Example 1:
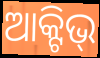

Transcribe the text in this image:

ଆକ୍ଟିଭ୍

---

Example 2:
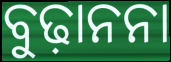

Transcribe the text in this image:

ବୁଢ଼ାନନା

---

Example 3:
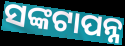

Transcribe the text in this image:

ସଙ୍କଟାପନ୍ନ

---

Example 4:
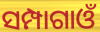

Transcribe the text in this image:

ସମ୍ପାଗାଓଁ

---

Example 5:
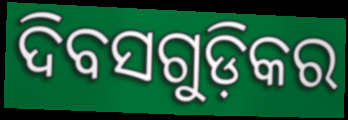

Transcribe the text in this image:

ଦିବସଗୁଡ଼ିକର